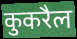
कुकरैल